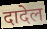
दादेल